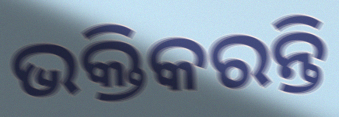
ଭକ୍ତିକରନ୍ତି